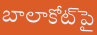
బాలాకోట్‌పై